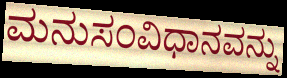
ಮನುಸಂವಿಧಾನವನ್ನು